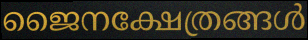
ജൈനക്ഷേത്രങ്ങൾ